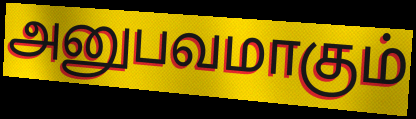
அனுபவமாகும்